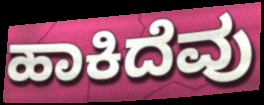
ಹಾಕಿದೆವು